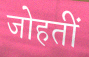
जोहतीं